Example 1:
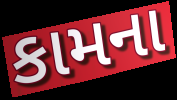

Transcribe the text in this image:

કામના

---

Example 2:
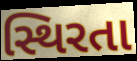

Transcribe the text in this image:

સ્થિરતા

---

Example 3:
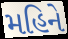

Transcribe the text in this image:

મહિને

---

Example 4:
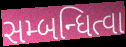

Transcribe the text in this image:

સમ્બન્ધિત્વા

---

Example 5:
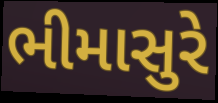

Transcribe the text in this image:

ભીમાસુરે